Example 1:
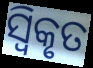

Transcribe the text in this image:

ସ୍ୱିକୃତ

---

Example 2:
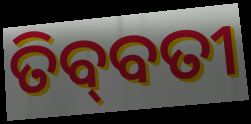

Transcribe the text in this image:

ତିବ୍‌ବତୀ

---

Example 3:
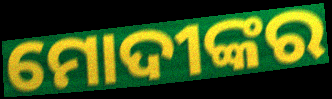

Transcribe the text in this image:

ମୋଦୀଙ୍କର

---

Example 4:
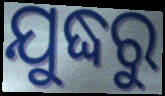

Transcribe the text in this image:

ଯୁଦ୍ଧରୁ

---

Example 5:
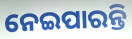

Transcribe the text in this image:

ନେଇପାରନ୍ତି